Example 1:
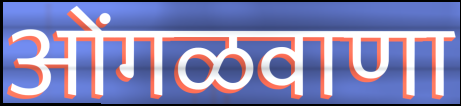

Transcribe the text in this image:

ओंगळवाणा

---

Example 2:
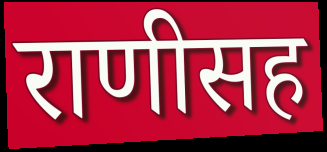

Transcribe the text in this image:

राणीसह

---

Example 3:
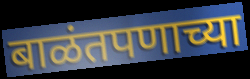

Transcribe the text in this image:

बाळंतपणाच्या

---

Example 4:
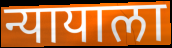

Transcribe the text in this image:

न्यायाला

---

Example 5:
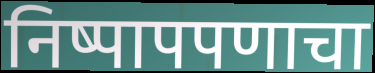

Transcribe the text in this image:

निष्पापपणाचा